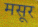
मसूर